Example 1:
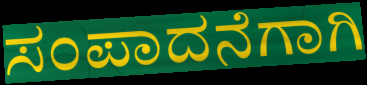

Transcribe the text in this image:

ಸಂಪಾದನೆಗಾಗಿ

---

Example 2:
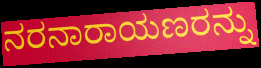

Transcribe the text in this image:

ನರನಾರಾಯಣರನ್ನು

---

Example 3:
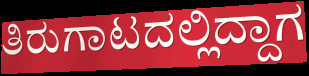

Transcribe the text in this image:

ತಿರುಗಾಟದಲ್ಲಿದ್ದಾಗ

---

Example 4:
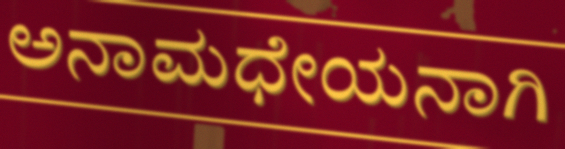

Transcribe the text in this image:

ಅನಾಮಧೇಯನಾಗಿ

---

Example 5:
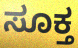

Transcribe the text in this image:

ಸೂಕ್ತ